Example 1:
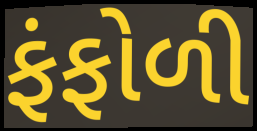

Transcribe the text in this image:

ફંફોળી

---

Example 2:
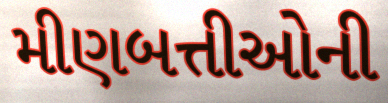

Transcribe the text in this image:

મીણબત્તીઓની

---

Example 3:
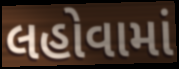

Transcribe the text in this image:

લહોવામાં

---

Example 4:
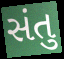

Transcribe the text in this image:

સંતુ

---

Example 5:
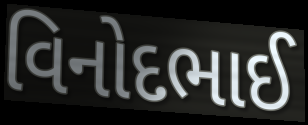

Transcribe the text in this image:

વિનોદભાઈ